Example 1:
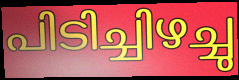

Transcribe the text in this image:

പിടിച്ചിഴച്ചു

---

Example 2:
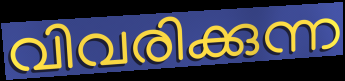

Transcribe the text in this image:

വിവരിക്കുന്ന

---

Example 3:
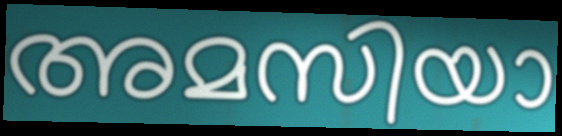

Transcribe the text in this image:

അമസിയാ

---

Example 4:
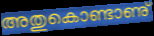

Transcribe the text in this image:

അതുകൊണ്ടാണു്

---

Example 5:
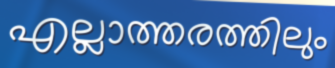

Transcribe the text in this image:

എല്ലാത്തരത്തിലും